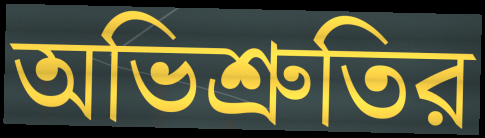
অভিশ্রুতির